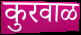
कुरवाळ